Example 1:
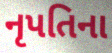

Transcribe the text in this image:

નૃપતિના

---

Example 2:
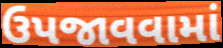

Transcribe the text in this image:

ઉપજાવવામાં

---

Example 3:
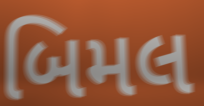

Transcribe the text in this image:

બિમલ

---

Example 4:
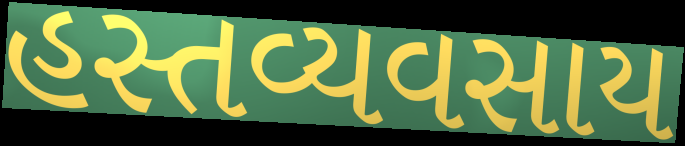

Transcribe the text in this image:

હસ્તવ્યવસાય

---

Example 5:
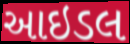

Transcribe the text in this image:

આઇડલ